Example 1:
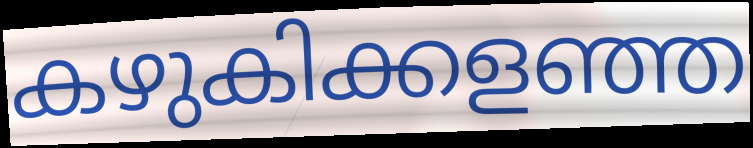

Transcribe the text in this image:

കഴുകിക്കളഞ്ഞ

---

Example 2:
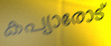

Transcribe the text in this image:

കപ്യാരോട്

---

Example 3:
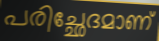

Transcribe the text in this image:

പരിച്ഛേദമാണ്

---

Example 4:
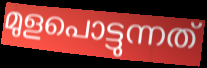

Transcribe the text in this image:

മുളപൊട്ടുന്നത്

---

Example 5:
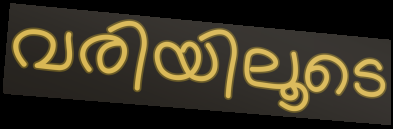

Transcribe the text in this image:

വരിയിലൂടെ